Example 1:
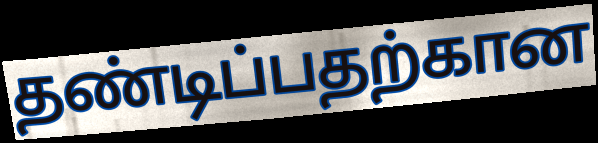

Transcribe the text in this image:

தண்டிப்பதற்கான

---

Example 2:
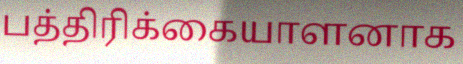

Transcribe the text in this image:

பத்திரிக்கையாளனாக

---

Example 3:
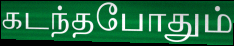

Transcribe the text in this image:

கடந்தபோதும்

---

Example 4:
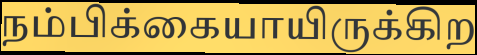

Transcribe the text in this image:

நம்பிக்கையாயிருக்கிற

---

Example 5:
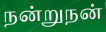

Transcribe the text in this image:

நன்றுநன்